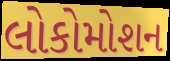
લોકોમોશન